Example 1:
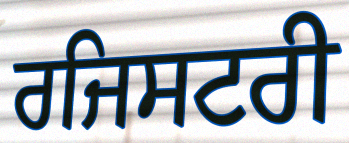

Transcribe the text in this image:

ਰਜਿਸਟਰੀ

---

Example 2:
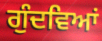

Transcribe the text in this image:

ਗੁੰਦਵਿਆਂ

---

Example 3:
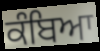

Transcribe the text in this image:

ਕੰਬਿਆ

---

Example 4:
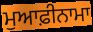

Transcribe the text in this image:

ਮੁਆਫ਼ੀਨਾਮਾ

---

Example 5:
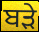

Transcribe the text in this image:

ਬਡ਼ੇ